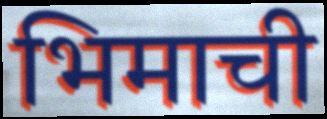
भिमाची